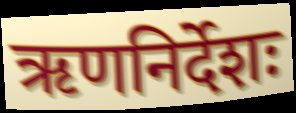
ऋणनिर्देशः